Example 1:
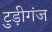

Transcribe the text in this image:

टुड़ीगंज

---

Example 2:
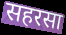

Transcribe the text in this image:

सहरसा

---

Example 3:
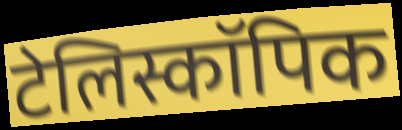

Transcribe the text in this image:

टेलिस्कॉपिक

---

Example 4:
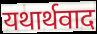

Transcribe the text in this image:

यथार्थवाद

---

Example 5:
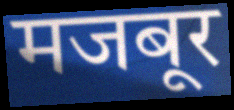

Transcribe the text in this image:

मजबूर